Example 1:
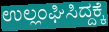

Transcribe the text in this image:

ಉಲ್ಲಂಘಿಸಿದ್ದಕ್ಕೆ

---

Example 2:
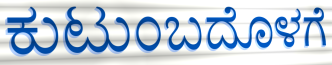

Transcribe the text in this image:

ಕುಟುಂಬದೊಳಗೆ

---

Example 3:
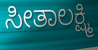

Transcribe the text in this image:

ಸೀತಾಲಕ್ಷ್ಮಿ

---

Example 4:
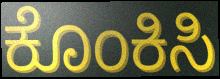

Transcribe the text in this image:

ಕೊಂಕಿಸಿ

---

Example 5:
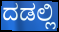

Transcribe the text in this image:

ದಡಲ್ಲಿ